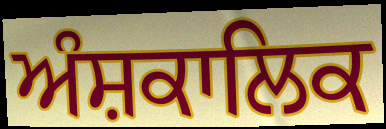
ਅੰਸ਼ਕਾਲਿਕ